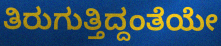
ತಿರುಗುತ್ತಿದ್ದಂತೆಯೇ